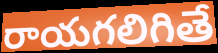
రాయగలిగితే